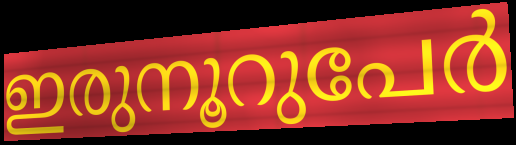
ഇരുനൂറുപേർ